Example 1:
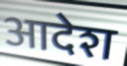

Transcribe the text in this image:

आदेश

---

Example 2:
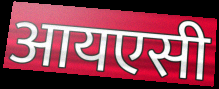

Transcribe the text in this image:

आयएसी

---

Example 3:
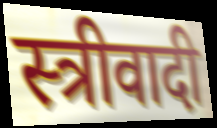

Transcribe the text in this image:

स्त्रीवादी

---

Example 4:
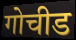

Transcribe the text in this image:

गोचीड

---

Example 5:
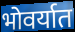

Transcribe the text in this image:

भोवर्यात